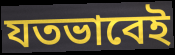
যতভাবেই